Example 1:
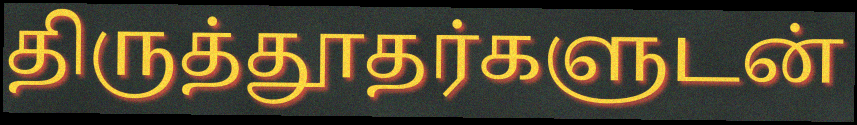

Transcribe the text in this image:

திருத்தூதர்களுடன்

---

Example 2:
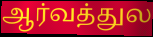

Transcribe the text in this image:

ஆர்வத்துல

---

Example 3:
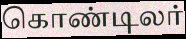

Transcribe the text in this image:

கொண்டிலர்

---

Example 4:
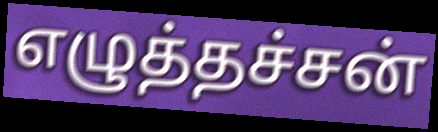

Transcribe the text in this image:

எழுத்தச்சன்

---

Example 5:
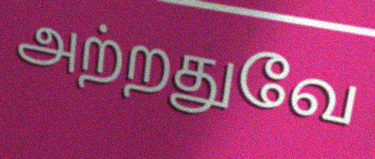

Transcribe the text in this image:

அற்றதுவே